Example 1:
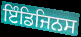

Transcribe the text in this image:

ਇੰਡਿਜਿਨਸ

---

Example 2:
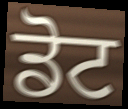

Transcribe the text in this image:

ਡੋਟ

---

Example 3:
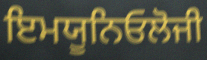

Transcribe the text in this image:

ਇਮਯੂਨਿਓਲੋਜੀ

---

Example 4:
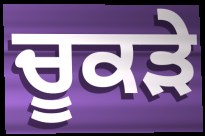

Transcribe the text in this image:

ਚੂਕੜੇ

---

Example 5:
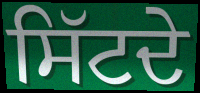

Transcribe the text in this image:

ਸਿੱਟਦੇ